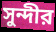
সুন্দীর